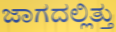
ಜಾಗದಲ್ಲಿತ್ತು